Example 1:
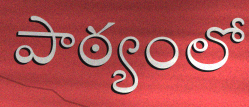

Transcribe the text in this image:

పాఠ్యంలో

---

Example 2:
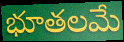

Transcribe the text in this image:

భూతలమే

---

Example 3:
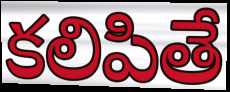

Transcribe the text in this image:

కలిపితే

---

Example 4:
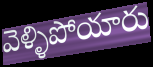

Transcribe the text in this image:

వెళ్ళిపోయారు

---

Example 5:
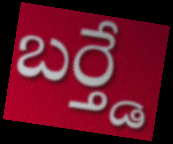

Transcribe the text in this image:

బర్త్డే